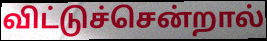
விட்டுச்சென்றால்